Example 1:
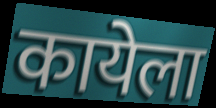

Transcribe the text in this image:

कायेला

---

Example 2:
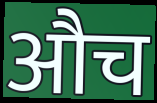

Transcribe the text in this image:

औच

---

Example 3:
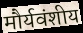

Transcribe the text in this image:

मौर्यवंशीय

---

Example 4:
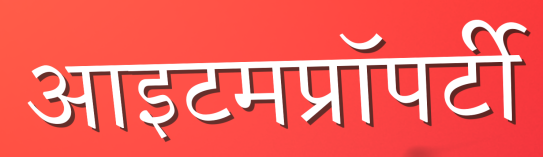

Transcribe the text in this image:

आइटमप्रॉपर्टी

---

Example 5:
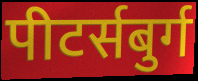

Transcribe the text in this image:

पीटर्सबुर्ग